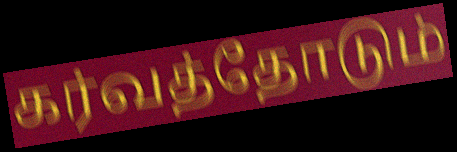
கர்வத்தோடும்